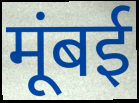
मूंबई